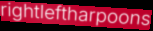
rightleftharpoons